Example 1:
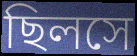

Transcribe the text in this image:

ছিলসে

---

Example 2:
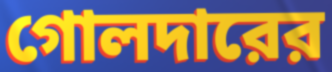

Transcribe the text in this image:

গোলদারের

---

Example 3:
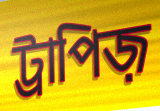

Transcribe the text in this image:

ট্রাপিজ়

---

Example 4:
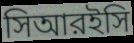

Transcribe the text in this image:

সিআরইসি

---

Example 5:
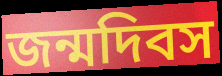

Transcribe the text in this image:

জন্মদিবস